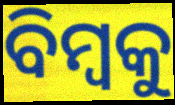
ବିମ୍ବକୁ